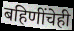
बहिणींचेही